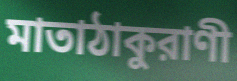
মাতাঠাকুরাণী